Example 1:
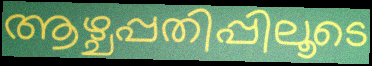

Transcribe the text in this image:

ആഴ്ചപ്പതിപ്പിലൂടെ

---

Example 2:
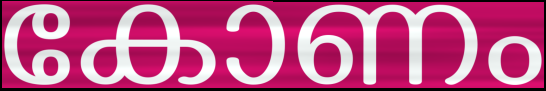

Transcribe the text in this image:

കോണം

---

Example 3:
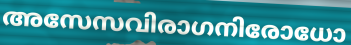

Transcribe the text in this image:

അസേസവിരാഗനിരോധോ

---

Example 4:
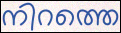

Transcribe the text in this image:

നിറത്തെ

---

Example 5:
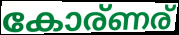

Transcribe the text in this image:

കോര്ണര്